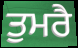
ਤੁਮਰੈ